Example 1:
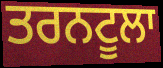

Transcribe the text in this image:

ਤਰਨਟੂਲਾ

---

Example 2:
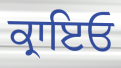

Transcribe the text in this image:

ਕ੍ਰਾਇਓ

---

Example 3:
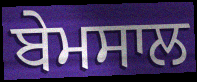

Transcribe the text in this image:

ਬੇਮਸਾਲ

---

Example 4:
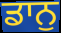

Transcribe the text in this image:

ਡਾਨੁ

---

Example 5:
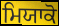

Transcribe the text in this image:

ਮਿਯਾਕੋ